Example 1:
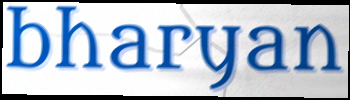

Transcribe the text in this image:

bharyan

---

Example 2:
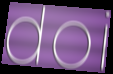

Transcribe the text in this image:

doi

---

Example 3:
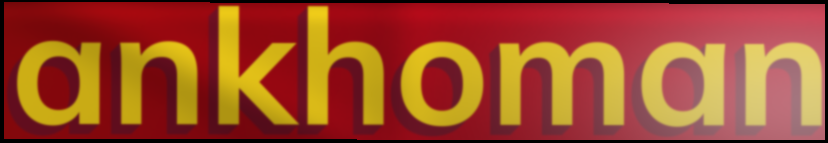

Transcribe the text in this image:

ankhoman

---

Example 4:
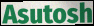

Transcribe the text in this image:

Asutosh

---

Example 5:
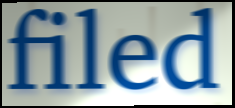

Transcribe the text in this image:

filed